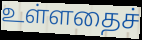
உள்ளதைச்